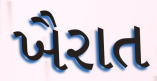
ખૈરાત